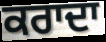
ਕਰਾਦਾ